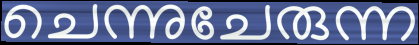
ചെന്നുചേരുന്ന